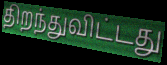
திறந்துவிட்டது